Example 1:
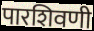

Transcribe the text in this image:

पारशिवणी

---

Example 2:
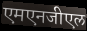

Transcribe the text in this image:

एमएनजीएल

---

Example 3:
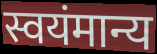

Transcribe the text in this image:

स्वयंमान्य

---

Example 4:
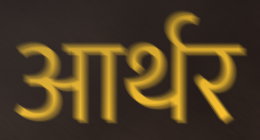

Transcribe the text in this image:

आर्थर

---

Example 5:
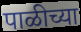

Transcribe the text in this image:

पाळीच्या